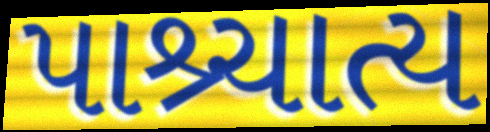
પાશ્ર્ચાત્ય